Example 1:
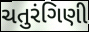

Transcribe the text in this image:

ચતુરંગિણી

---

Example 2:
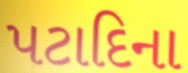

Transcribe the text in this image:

પટાદિના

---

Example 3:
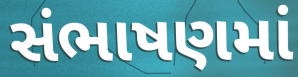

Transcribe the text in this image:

સંભાષણમાં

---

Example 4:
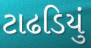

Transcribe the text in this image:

ટાઢડિયું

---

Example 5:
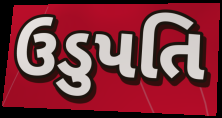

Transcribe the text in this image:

ઉડુપતિ